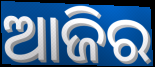
ଆଜିର